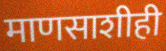
माणसाशीही